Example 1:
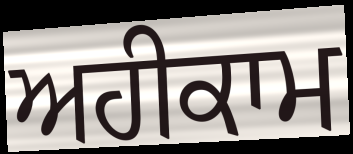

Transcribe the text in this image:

ਅਹੀਕਾਮ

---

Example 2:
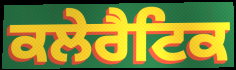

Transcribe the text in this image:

ਕਲੇਰੈਟਿਕ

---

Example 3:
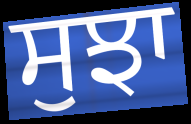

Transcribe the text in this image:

ਸੁਝਾ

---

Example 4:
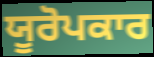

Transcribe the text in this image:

ਯੂਰੋਪਕਾਰ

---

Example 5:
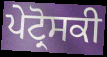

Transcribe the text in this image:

ਪੇਟ੍ਰੋਸਕੀ